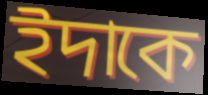
ইদাকে